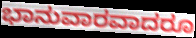
ಭಾನುವಾರವಾದರೂ